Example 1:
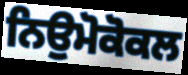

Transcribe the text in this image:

ਨਿਉਮੋਕੋਕਲ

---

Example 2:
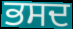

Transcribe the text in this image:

ਭਸਦ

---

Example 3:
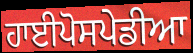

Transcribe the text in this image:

ਹਾਈਪੋਸਪੇਡੀਆ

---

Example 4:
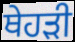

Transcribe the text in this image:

ਥੇਹੜੀ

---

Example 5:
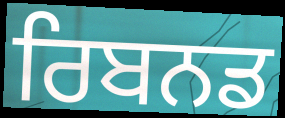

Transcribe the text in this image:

ਰਿਬਨਡ